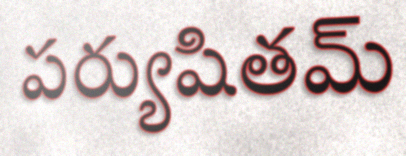
పర్యుషితమ్